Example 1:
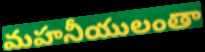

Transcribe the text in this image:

మహనీయులంతా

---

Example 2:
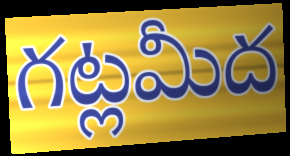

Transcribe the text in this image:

గట్లమీద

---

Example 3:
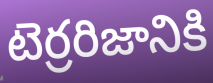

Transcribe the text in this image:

టెర్రరిజానికి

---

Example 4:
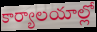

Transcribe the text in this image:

కార్యాలయాల్లో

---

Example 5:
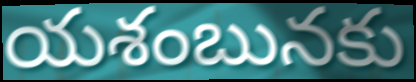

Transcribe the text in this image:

యశంబునకు